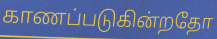
காணப்படுகின்றதோ